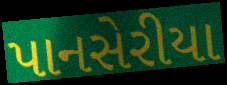
પાનસેરીયા